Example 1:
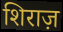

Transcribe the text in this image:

शिराज़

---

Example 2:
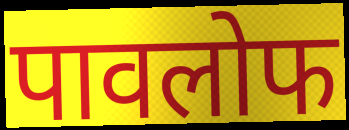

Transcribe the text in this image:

पावलोफ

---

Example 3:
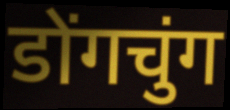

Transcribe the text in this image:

डोंगचुंग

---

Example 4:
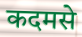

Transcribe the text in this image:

कदमसे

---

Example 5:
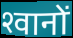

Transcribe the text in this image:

श्वानों